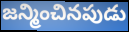
జన్మించినపుడు